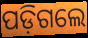
ପଡ଼ିଗଲେ